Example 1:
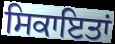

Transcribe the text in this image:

ਸਿਕਾਇਤਾਂ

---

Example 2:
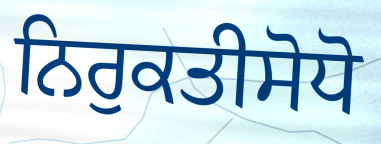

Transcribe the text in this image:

ਨਿਰੁਕਤੀਸੋਧੋ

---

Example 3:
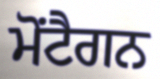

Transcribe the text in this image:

ਮੋਂਟੈਗਨ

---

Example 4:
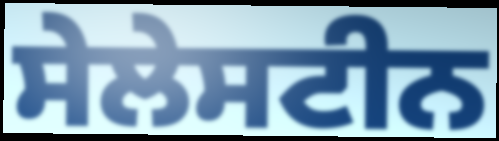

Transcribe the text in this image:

ਸੇਲੇਸਟੀਨ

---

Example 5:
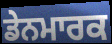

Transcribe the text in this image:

ਡੇਨਮਾਰਕ